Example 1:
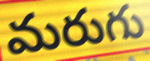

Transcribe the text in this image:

మరుగు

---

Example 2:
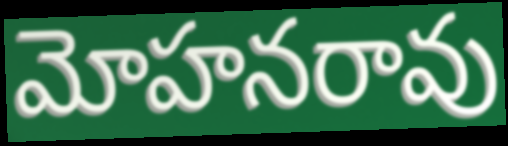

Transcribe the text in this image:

మోహనరావు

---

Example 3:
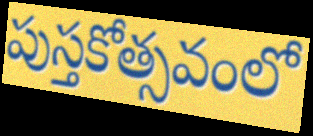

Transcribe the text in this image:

పుస్తకోత్సవంలో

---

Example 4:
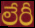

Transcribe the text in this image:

లేరీ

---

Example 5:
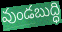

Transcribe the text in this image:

వుండబుద్ధి